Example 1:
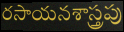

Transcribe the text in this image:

రసాయనశాస్త్రపు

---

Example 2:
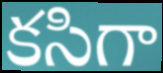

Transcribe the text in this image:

కసిగా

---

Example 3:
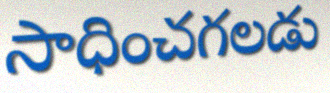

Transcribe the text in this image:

సాధించగలడు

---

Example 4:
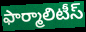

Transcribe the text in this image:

ఫార్మాలిటీస్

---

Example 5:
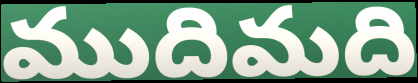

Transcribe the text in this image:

ముదిమది